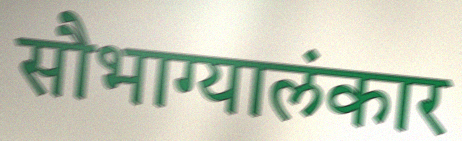
सौभाग्यालंकार